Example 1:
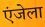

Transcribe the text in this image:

एंजेला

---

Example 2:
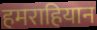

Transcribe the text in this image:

हमराहियान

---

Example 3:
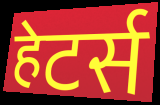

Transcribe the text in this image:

हेटर्स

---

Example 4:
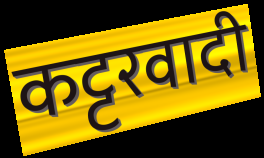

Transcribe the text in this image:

कट्टरवादी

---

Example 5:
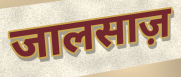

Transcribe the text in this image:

जालसाज़